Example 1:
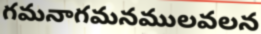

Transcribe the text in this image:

గమనాగమనములవలన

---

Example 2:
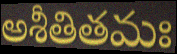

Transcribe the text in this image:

అశీతితమః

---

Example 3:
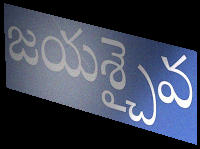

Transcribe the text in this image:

జయశ్చైవ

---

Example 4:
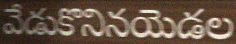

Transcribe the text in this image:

వేడుకొనినయెడల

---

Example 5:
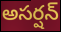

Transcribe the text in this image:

అసర్షన్